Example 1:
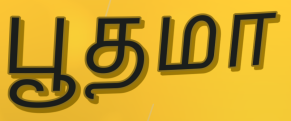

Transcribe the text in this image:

பூதமா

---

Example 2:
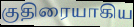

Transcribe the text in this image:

குதிரையாகிய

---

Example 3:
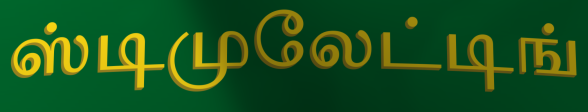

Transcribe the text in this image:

ஸ்டிமுலேட்டிங்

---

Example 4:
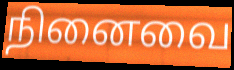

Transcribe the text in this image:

நினைவை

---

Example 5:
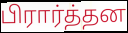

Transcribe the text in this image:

பிரார்த்தன